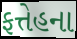
ફત્તેહના